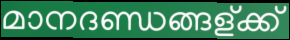
മാനദണ്ഡങ്ങള്ക്ക്